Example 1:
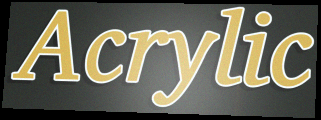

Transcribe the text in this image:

Acrylic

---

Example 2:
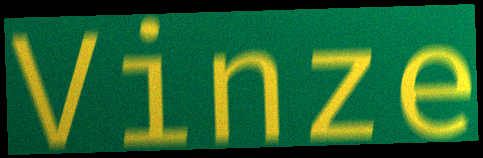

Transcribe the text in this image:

Vinze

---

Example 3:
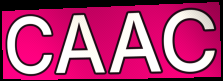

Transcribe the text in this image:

CAAC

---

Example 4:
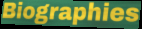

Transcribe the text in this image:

Biographies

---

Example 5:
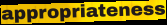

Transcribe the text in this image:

appropriateness